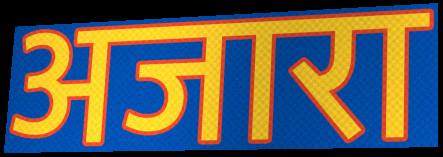
अजारा